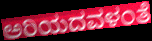
ಅರಿಯದವಳಂತೆ